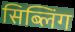
सिब्लिंग